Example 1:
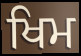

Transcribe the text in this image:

ਖਿਮ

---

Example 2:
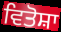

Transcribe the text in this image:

ਵਿਤੋਸ਼ਾ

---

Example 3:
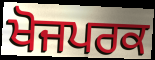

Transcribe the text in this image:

ਖੋਜਪਰਕ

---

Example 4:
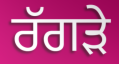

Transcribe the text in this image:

ਰੱਗੜੇ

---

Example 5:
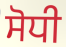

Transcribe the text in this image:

ਸੋਧੀ